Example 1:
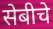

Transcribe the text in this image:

सेबीचे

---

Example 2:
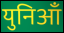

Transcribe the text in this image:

युनिआँ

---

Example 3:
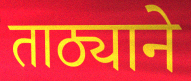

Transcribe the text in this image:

ताठ्याने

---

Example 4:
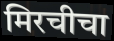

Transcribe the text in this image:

मिरचीचा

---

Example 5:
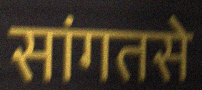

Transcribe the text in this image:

सांगतसे